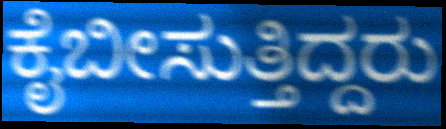
ಕೈಬೀಸುತ್ತಿದ್ದರು